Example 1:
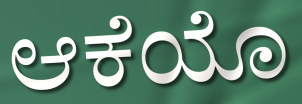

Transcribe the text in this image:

ಆಕೆಯೊ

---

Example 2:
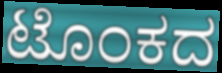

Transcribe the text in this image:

ಟೊಂಕದ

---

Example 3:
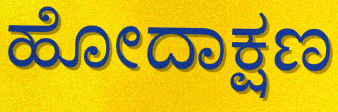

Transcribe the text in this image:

ಹೋದಾಕ್ಷಣ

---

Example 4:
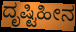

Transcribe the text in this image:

ದೃಷ್ಟಿಹೀನ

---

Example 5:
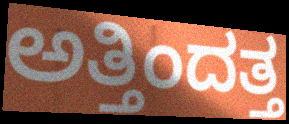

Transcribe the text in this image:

ಅತ್ತಿಂದತ್ತ